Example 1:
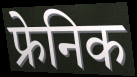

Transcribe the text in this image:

फ्रेनिक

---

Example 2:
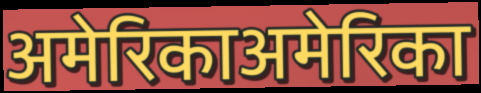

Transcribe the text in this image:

अमेरिकाअमेरिका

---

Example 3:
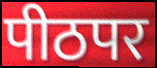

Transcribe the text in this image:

पीठपर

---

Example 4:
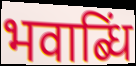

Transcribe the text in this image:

भवाब्धिं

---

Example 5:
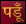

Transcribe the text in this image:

पडूँ